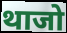
थाजो